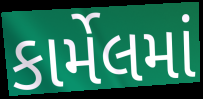
કાર્મેલમાં